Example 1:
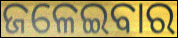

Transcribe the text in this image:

ଜଳେଇବାର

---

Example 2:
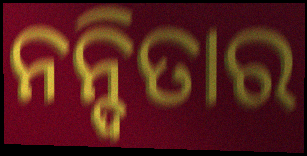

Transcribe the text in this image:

ନନ୍ଦିତାର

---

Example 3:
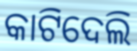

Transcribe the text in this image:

କାଟିଦେଲି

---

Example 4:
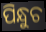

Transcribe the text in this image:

ପିନ୍ଧୁଚ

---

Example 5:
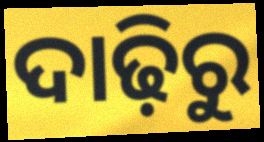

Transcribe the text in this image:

ଦାଢ଼ିରୁ